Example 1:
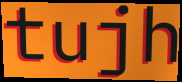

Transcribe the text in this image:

tujh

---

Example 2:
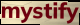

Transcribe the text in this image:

mystify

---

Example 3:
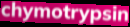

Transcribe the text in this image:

chymotrypsin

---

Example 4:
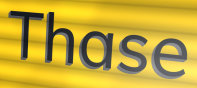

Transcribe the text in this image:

Thase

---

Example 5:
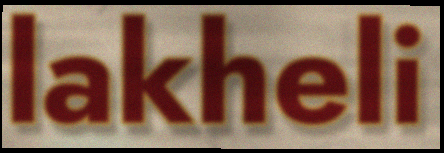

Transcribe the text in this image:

lakheli